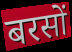
बरसों